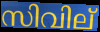
സിവില്